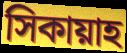
সিকায়াহ